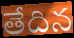
తేదిన